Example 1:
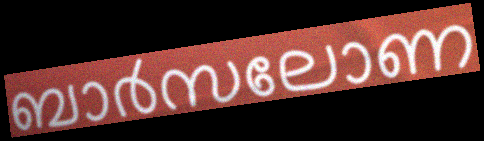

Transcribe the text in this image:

ബാർസലോണ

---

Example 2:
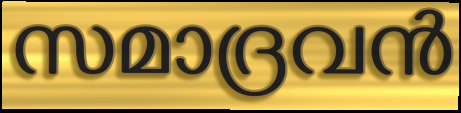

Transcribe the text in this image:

സമാദ്രവൻ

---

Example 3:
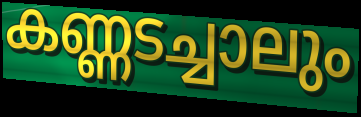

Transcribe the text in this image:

കണ്ണടച്ചാലും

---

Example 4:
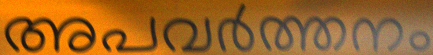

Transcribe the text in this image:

അപവർത്തനം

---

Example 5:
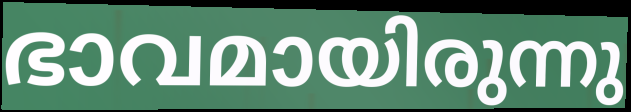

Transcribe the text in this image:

ഭാവമായിരുന്നു